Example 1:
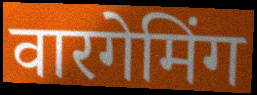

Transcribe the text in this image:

वारगेमिंग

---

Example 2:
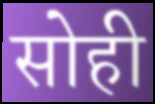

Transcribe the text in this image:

सोही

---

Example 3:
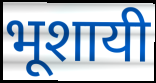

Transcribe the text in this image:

भूशायी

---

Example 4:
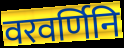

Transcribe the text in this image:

वरवर्णिनि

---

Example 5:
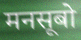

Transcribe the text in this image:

मनसूबो